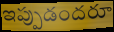
ఇప్పుడందరూ